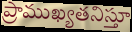
ప్రాముఖ్యతనిస్తూ